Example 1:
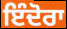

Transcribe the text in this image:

ਇੰਦੋਰਾ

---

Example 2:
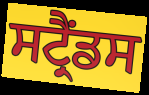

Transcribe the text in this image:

ਸਟ੍ਰੈਂਡਸ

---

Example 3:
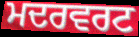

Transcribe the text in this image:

ਮਦਰਵਰਟ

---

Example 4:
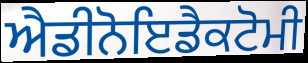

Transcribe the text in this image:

ਐਡੀਨੋਇਡੈਕਟੋਮੀ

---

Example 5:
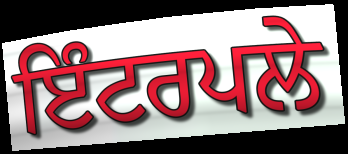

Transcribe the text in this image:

ਇੰਟਰਪਲੇ